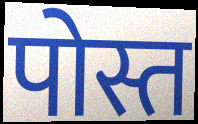
पोस्त